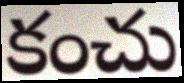
కంచు